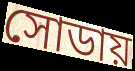
সোডায়